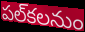
పల్‌కలనుం